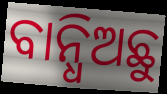
ବାନ୍ଧିଅଛୁ